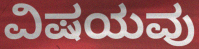
ವಿಷಯವು